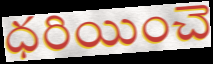
ధరియించె